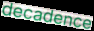
decadence